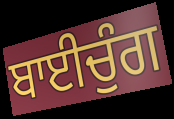
ਬਾਈਚੁੰਗ